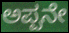
ಅಪ್ಪನೇ